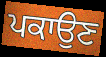
ਪਕਾਉਣ